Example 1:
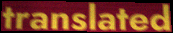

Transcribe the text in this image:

translated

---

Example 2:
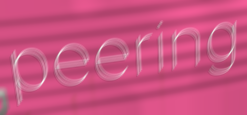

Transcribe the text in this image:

peering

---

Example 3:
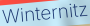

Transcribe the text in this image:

Winternitz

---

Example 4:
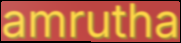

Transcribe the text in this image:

amrutha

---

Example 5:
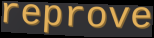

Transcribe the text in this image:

reprove